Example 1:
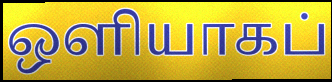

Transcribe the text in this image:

ஒளியாகப்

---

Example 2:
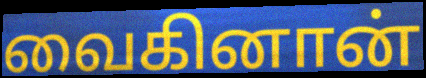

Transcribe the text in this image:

வைகினான்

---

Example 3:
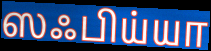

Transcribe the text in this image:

ஸஃபிய்யா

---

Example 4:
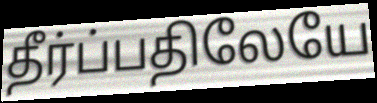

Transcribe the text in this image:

தீர்ப்பதிலேயே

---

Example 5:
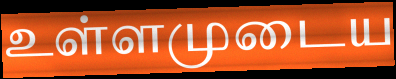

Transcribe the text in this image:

உள்ளமுடைய